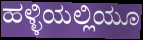
ಹಳ್ಳಿಯಲ್ಲಿಯೂ